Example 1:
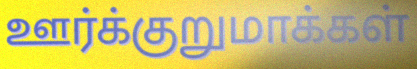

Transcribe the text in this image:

ஊர்க்குறுமாக்கள்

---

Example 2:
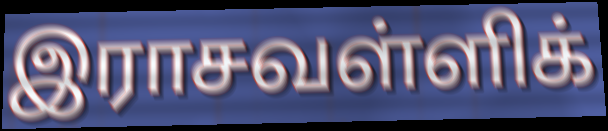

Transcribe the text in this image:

இராசவள்ளிக்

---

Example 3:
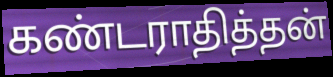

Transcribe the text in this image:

கண்டராதித்தன்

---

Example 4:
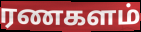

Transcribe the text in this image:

ரணகளம்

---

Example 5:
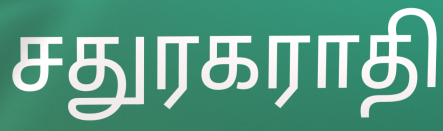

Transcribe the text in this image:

சதுரகராதி